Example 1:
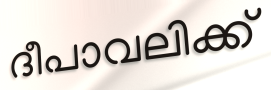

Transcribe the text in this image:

ദീപാവലിക്ക്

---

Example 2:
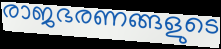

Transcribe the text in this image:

രാജഭരണങ്ങളുടെ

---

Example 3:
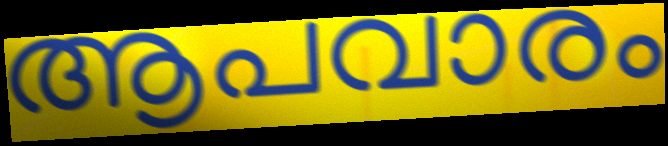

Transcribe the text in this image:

ആപവാരം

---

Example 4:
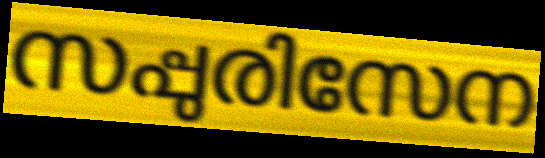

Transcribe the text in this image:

സപ്പുരിസേന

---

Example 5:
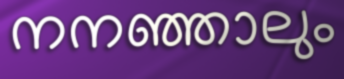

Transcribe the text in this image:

നനഞ്ഞാലും